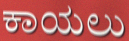
ಕಾಯಲು